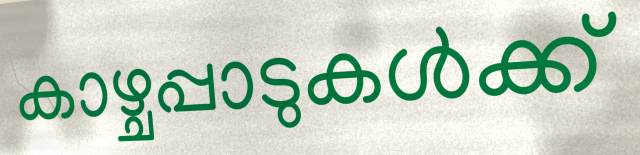
കാഴ്ചപ്പാടുകൾക്ക്